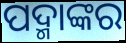
ପଦ୍ମାଙ୍କର